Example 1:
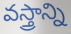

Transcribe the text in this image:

వస్త్రాన్ని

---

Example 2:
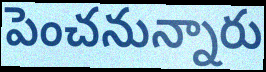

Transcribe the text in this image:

పెంచనున్నారు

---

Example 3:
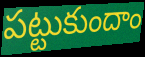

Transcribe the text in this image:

పట్టుకుందాం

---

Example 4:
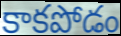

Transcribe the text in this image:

కాకపోడం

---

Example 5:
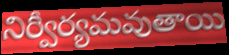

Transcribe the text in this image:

నిర్వీర్యమవుతాయి